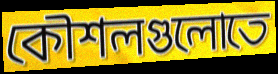
কৌশলগুলোতে